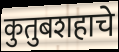
कुतुबशहाचे